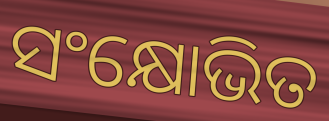
ସଂକ୍ଷୋଭିତ